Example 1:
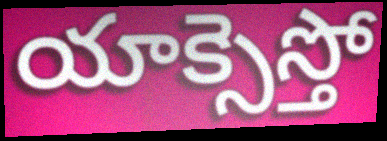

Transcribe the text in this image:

యాక్సెస్తో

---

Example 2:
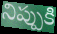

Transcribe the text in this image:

నిప్పుకి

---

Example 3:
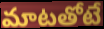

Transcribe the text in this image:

మాటతోటే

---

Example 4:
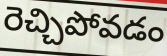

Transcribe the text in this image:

రెచ్చిపోవడం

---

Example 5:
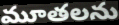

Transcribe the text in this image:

మూతలను